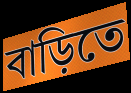
বাড়িতে